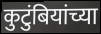
कुटुंबियांच्या